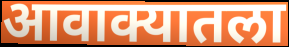
आवाक्यातला